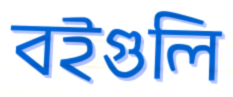
বইগুলি